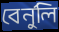
বেৰ্নুলি